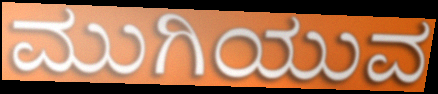
ಮುಗಿಯುವ